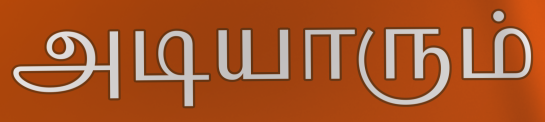
அடியாரும்